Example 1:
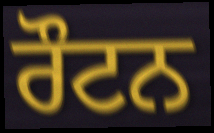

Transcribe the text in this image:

ਰੌਟਨ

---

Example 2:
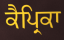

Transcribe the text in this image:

ਕੈਪ੍ਰਿਕਾ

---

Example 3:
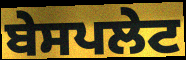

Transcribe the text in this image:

ਬੇਸਪਲੇਟ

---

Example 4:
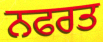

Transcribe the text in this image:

ਨਫਰਤ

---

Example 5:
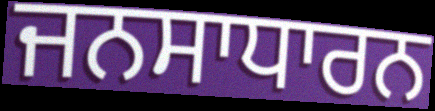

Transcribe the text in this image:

ਜਨਸਾਧਾਰਨ